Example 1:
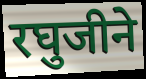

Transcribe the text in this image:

रघुजीने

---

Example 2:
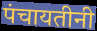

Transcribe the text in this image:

पंचायतीनी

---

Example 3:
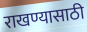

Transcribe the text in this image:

राखण्यासाठी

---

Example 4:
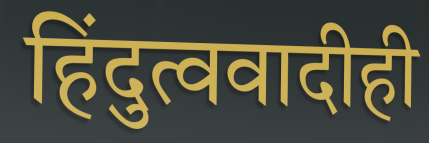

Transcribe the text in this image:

हिंदुत्ववादीही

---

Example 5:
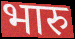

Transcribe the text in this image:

भारु